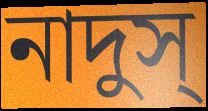
নাদুস্